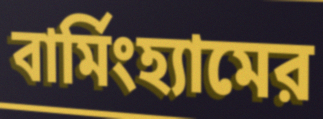
বার্মিংহ্যামের